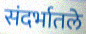
संदर्भातले